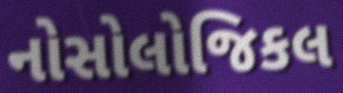
નોસોલોજિકલ